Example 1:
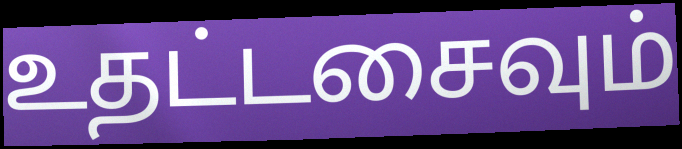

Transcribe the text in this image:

உதட்டசைவும்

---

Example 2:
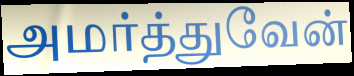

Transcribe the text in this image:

அமர்த்துவேன்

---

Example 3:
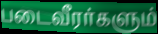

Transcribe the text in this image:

படைவீரர்களும்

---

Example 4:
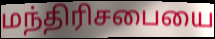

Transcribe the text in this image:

மந்திரிசபையை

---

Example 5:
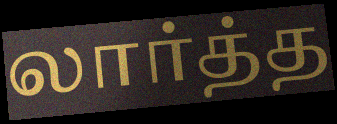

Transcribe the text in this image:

லார்த்த